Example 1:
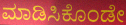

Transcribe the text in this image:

ಮಾಡಿಸಿಕೊಂಡೇ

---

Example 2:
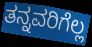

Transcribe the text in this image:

ತನ್ನವರಿಗೆಲ್ಲ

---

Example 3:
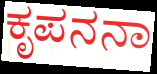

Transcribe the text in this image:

ಕೃಪನನಾ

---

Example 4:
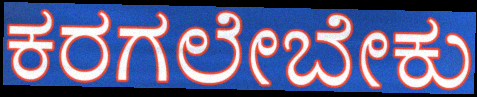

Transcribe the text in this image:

ಕರಗಲೇಬೇಕು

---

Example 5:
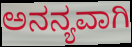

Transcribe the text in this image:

ಅನನ್ಯವಾಗಿ